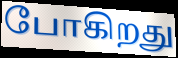
போகிறது